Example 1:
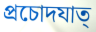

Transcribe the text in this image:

প্রচোদযাত্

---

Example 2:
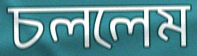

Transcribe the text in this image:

চললেম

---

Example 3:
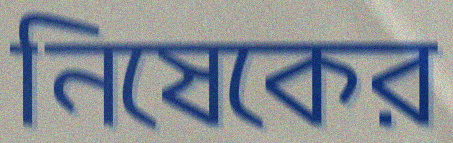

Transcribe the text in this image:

নিষেকের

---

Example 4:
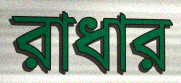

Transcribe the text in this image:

রাধার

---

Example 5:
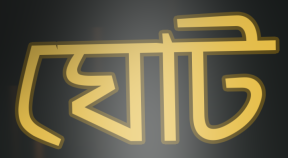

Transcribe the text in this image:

ঘোট